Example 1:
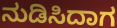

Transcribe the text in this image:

ನುಡಿಸಿದಾಗ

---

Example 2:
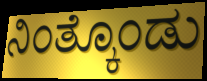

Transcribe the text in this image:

ನಿಂತ್ಕೊಂಡು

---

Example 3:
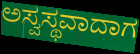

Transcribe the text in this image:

ಅಸ್ವಸ್ಥವಾದಾಗ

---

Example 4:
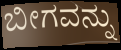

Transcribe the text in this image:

ಬೀಗವನ್ನು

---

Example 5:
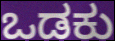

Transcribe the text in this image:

ಒಡಕು